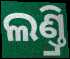
ଲଣ୍ତ୍ରି